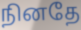
நினதே